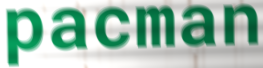
pacman